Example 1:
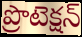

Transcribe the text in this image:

ప్రొటెక్షన్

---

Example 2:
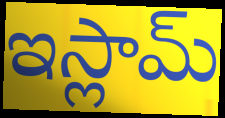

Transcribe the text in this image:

ఇస్లామ్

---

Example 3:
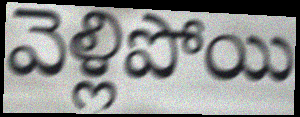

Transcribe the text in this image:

వెళ్లిపోయి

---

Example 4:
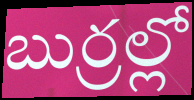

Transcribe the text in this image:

బుర్రల్లో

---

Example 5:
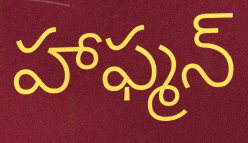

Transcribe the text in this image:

హాఫ్మన్